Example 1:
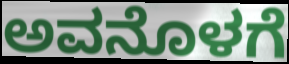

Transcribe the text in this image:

ಅವನೊಳಗೆ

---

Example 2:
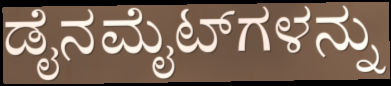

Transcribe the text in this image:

ಡೈನಮೈಟ್‌ಗಳನ್ನು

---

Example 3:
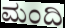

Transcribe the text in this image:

ಮಂದಿ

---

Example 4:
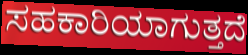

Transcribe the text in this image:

ಸಹಕಾರಿಯಾಗುತ್ತದೆ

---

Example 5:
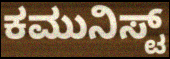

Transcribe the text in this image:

ಕಮುನಿಸ್ಟ್